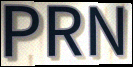
PRN